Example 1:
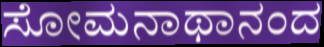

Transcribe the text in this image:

ಸೋಮನಾಥಾನಂದ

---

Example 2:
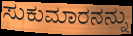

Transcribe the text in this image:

ಸುಕುಮಾರನನ್ನು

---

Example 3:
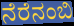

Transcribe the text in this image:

ನೆರೆನಂಬಿ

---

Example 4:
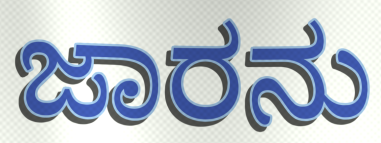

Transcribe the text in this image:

ಜಾರನು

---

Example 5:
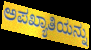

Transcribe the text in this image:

ಅಪಖ್ಯಾತಿಯನ್ನು